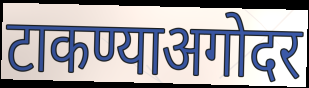
टाकण्याअगोदर